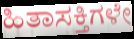
ಹಿತಾಸಕ್ತಿಗಳೇ